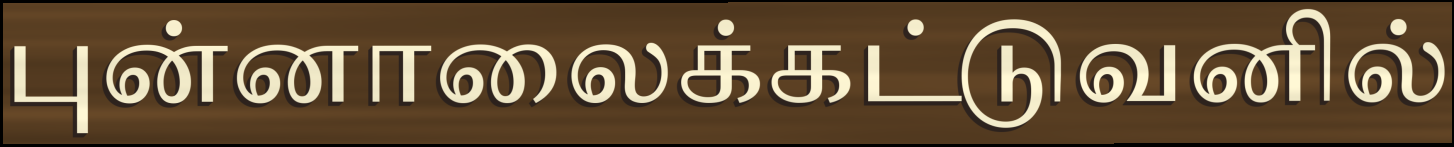
புன்னாலைக்கட்டுவனில்